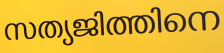
സത്യജിത്തിനെ